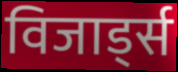
विजार्ड्स